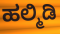
ಹಲ್ಮಿಡಿ